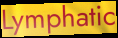
Lymphatic